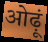
ओढ़ूं